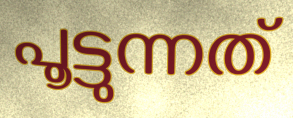
പൂട്ടുന്നത്